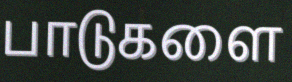
பாடுகளை